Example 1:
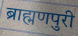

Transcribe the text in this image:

ब्राह्मणपुरी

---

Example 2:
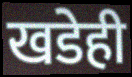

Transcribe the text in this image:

खडेही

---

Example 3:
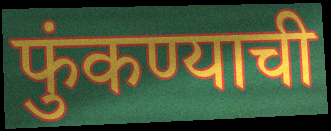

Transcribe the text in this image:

फुंकण्याची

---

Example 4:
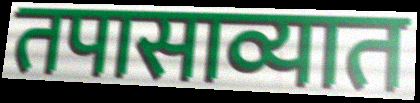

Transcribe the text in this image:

तपासाव्यात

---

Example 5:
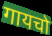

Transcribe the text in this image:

गायचो